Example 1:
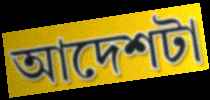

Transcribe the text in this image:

আদেশটা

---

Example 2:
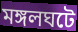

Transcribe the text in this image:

মঙ্গলঘটে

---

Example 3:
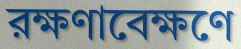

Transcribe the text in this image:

রক্ষণাবেক্ষণে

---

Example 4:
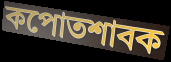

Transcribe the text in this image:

কপোতশাবক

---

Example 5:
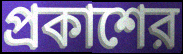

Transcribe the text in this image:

প্রকাশের